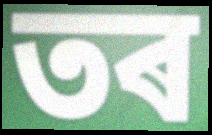
তৰ